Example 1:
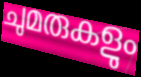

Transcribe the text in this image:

ചുമരുകളും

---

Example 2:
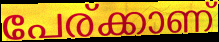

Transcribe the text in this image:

പേര്ക്കാണ്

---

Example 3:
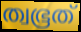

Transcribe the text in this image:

ത്വഭൂത്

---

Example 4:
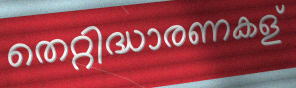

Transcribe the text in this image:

തെറ്റിദ്ധാരണകള്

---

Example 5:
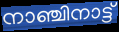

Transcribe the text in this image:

നാഞ്ചിനാട്ട്